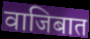
वाजिबात